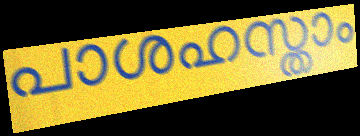
പാശഹസ്താം